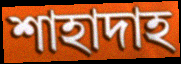
শাহাদাহ